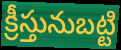
క్రీస్తునుబట్టి